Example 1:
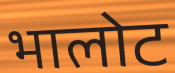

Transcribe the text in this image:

भालोट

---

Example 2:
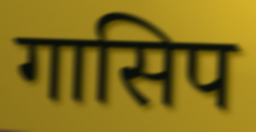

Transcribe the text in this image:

गासिप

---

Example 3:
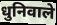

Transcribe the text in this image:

धुनिवाले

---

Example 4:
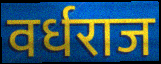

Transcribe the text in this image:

वर्धराज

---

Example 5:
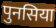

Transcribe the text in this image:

पुनसिया